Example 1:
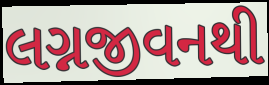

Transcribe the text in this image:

લગ્નજીવનથી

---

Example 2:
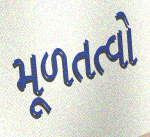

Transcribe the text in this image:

મૂળતત્વો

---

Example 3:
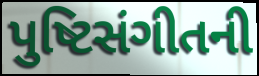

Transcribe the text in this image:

પુષ્ટિસંગીતની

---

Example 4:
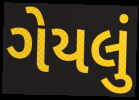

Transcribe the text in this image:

ગેયલું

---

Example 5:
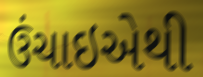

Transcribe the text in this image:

ઉંચાઇએથી